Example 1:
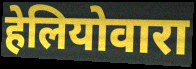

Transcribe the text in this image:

हेलियोवारा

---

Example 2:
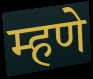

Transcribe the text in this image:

म्हणे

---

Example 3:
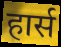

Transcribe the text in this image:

हार्स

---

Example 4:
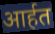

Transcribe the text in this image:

आर्हत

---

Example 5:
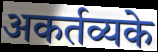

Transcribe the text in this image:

अकर्तव्यके